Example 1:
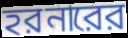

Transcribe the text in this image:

হরনারের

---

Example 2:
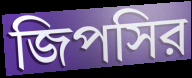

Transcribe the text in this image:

জিপসির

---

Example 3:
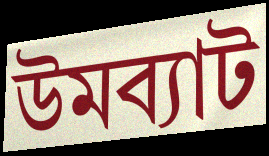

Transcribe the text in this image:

উমব্যাট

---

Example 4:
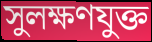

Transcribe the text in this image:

সুলক্ষণযুক্ত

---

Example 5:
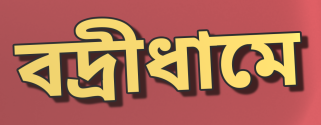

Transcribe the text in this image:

বদ্রীধামে